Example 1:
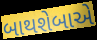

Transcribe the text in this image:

બાથશેબાએ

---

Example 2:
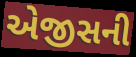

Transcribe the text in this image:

એજીસની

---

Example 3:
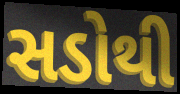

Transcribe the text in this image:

સડોથી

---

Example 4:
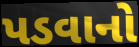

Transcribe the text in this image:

પડવાનો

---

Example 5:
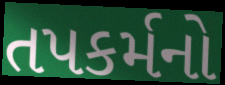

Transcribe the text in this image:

તપકર્મનો